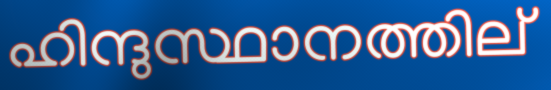
ഹിന്ദുസ്ഥാനത്തില്